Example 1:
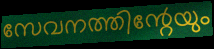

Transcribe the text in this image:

സേവനത്തിന്റേയും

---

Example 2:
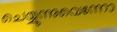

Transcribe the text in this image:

ചെയ്യുന്നുവെന്നോ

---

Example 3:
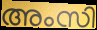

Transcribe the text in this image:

അംസി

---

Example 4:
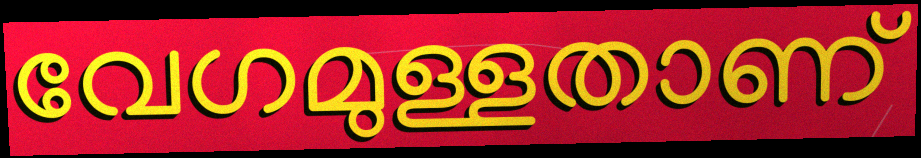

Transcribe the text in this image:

വേഗമുള്ളതാണ്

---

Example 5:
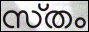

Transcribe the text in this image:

സ്‌തം